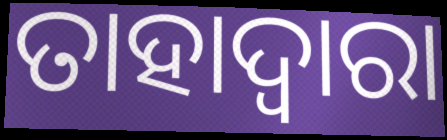
ତାହାଦ୍ଵାରା